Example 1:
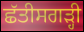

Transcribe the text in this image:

ਛੱਤੀਸਗੜ੍ਹੀ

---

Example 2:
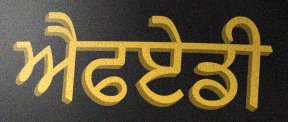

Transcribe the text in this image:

ਐਫਏਡੀ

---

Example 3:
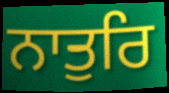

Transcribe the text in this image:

ਨਾਤੁਰਿ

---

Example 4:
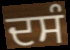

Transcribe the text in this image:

ਦਸੰ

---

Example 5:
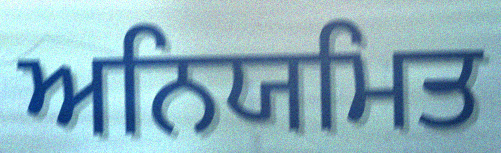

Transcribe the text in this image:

ਅਨਿਯਮਿਤ